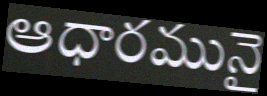
ఆధారమునై